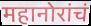
महानोरांचं